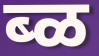
ब्ळ